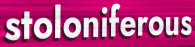
stoloniferous